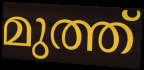
മുത്ത്